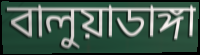
বালুয়াডাঙ্গা